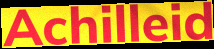
Achilleid